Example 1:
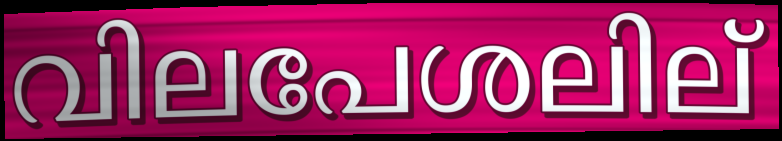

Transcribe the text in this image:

വിലപേശലില്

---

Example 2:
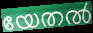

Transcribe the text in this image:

യേതൽ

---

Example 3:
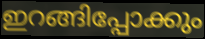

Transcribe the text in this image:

ഇറങ്ങിപ്പോക്കും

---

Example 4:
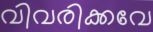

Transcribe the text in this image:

വിവരിക്കവേ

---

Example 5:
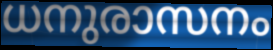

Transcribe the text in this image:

ധനുരാസനം